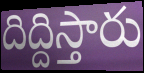
దిద్దిస్తారు